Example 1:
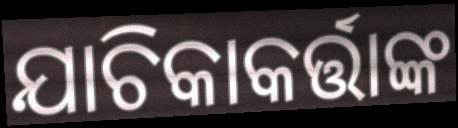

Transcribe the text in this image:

ଯାଚିକାକର୍ତ୍ତାଙ୍କ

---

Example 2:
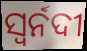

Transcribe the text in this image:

ସ୍ୱର୍ନଦୀ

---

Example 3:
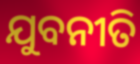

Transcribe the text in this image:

ଯୁବନୀତି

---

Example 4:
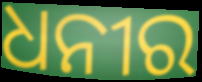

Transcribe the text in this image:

ଧନୀର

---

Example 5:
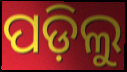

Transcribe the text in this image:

ପଡ଼ିଲୁ